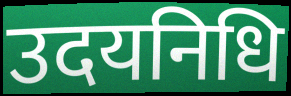
उदयनिधि